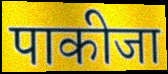
पाकीजा